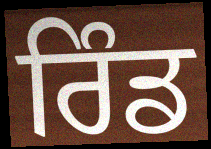
ਰਿੰਡ